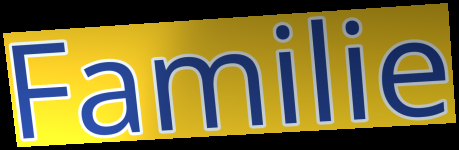
Familie